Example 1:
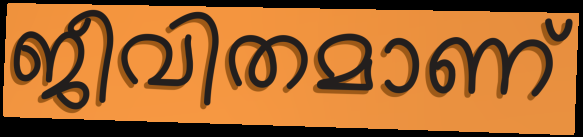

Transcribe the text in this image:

ജീവിതമാണ്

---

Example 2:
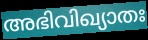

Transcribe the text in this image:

അഭിവിഖ്യാതഃ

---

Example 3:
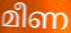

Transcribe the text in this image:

മീണ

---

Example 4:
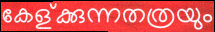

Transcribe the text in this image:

കേള്ക്കുന്നതത്രയും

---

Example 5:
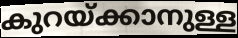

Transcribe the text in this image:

കുറയ്ക്കാനുള്ള